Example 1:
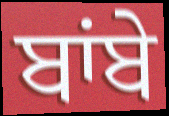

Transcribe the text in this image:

ਬਾਂਬੇ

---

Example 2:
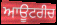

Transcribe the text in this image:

ਆਊਟਰੀਚ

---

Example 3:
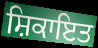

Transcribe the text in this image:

ਸ਼ਿਕਾਇਤ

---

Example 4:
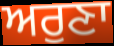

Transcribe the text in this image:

ਅਰੁਣਾ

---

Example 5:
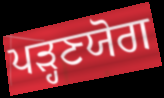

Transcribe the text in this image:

ਪੜ੍ਹਣਯੋਗ